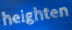
heighten